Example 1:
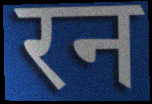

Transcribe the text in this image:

रन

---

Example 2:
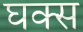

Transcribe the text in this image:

घक्स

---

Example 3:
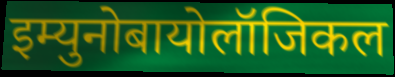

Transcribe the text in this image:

इम्युनोबायोलॉजिकल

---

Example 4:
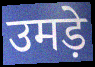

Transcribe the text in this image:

उमड़े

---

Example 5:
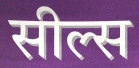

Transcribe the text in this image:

सील्स